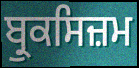
ਬ੍ਰੁਕਸਿਜ਼ਮ